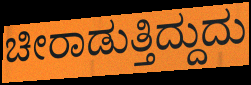
ಚೀರಾಡುತ್ತಿದ್ದುದು